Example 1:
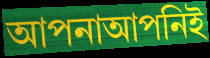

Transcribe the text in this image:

আপনাআপনিই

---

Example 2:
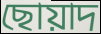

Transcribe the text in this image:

ছোয়াদ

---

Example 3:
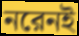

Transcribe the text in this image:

নরেনই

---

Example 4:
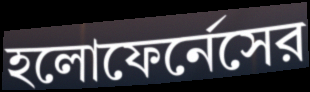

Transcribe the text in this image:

হলোফের্নেসের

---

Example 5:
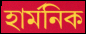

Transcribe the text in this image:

হার্মনিক